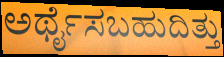
ಅರ್ಥೈಸಬಹುದಿತ್ತು